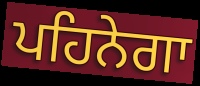
ਪਹਿਨੇਗਾ